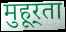
मुहूर्ता